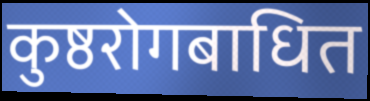
कुष्ठरोगबाधित